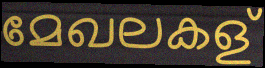
മേഖലകള്